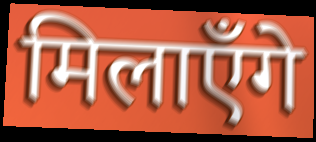
मिलाएँगे